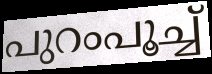
പുറംപൂച്ച്